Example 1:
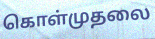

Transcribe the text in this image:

கொள்முதலை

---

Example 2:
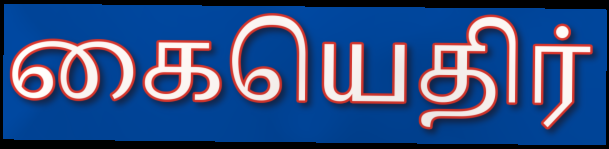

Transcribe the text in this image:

கையெதிர்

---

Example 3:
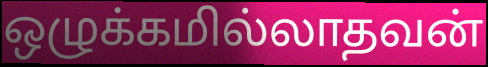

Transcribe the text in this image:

ஒழுக்கமில்லாதவன்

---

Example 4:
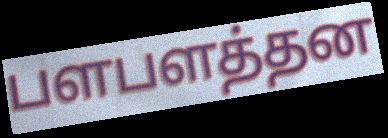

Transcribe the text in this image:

பளபளத்தன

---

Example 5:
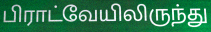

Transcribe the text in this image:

பிராட்வேயிலிருந்து